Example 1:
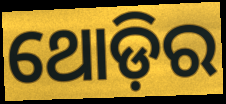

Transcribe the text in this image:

ଥୋଡ଼ିର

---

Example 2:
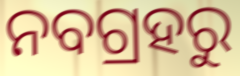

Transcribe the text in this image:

ନବଗ୍ରହରୁ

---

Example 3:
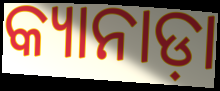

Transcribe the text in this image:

କ୍ୟାନାଡ଼ା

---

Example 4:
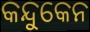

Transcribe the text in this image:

କନ୍ଦୁକେନ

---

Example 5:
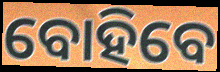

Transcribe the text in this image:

ବୋହିବେ